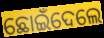
ଛୋଇଁଦେଲେ